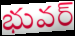
భువర్